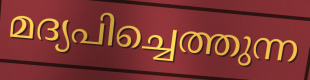
മദ്യപിച്ചെത്തുന്ന